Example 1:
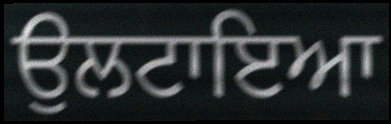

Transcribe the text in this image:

ਉਲਟਾਇਆ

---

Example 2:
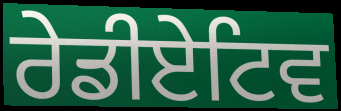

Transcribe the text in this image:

ਰੇਡੀਏਟਿਵ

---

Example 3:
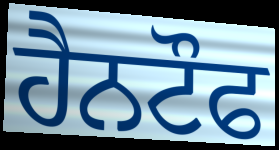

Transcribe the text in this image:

ਹੈਨਟੌਫ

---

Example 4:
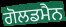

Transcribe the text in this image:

ਗੋਲਡਮੈਨ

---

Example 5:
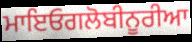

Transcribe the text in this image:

ਮਾਇਓਗਲੋਬੀਨੂਰੀਆ